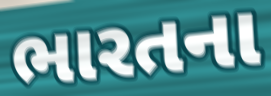
ભારતના